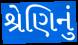
શ્રેણિનું